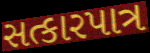
સત્કારપાત્ર